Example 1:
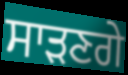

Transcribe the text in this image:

ਸਾੜਣਗੇ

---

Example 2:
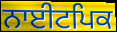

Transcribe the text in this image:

ਨਾਈਟਪਿਕ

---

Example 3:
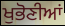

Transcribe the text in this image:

ਖੁਭੋਣੀਆਂ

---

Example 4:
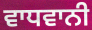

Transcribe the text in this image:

ਵਾਧਵਾਨੀ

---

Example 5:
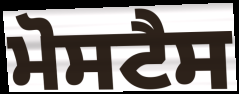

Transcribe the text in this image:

ਮੋਸਟੈਸ